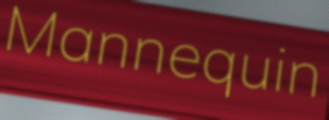
Mannequin